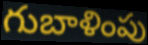
గుబాళింపు